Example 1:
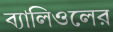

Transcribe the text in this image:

ব্যালিওলের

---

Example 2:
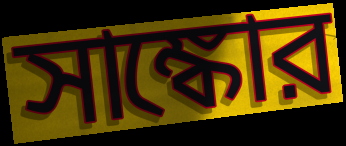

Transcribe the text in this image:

সাঙ্কোর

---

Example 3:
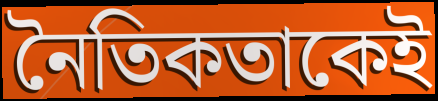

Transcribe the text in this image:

নৈতিকতাকেই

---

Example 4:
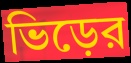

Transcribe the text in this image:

ভিড়ের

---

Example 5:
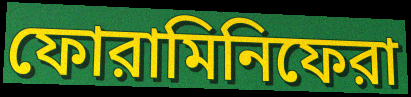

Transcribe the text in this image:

ফোরামিনিফেরা